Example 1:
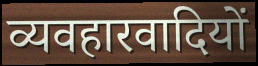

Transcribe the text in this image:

व्यवहारवादियों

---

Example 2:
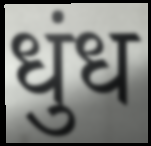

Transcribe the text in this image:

धुंध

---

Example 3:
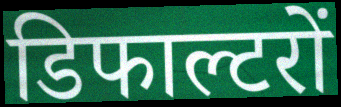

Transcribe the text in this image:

डिफाल्टरों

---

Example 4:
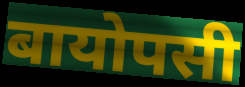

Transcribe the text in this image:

बायोपसी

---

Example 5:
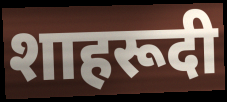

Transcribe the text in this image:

शाहरूदी